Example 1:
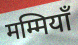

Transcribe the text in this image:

मम्मियाँ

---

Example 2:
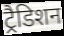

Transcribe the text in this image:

ट्रैडिशन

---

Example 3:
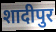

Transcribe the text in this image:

शादीपुर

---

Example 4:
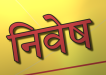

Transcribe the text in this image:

निवेष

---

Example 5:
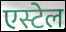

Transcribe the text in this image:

एस्टेल